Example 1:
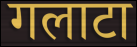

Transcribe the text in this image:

गलाटा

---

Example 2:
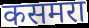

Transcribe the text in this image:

कसमरा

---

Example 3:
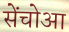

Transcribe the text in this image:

सेंचोआ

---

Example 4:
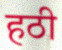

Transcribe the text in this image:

हठी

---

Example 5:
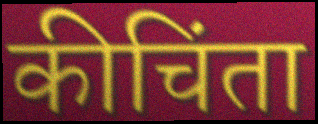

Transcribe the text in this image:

कीचिंता